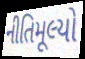
નીતિમૂલ્યો